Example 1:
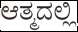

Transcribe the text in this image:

ಆತ್ಮದಲ್ಲಿ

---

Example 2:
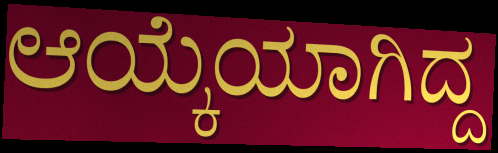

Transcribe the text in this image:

ಆಯ್ಕೆಯಾಗಿದ್ದ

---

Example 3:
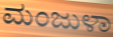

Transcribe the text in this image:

ಮಂಜುಳಾ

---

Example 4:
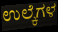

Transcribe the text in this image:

ಉಲ್ಕೆಗಳ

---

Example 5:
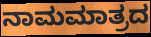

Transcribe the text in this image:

ನಾಮಮಾತ್ರದ